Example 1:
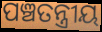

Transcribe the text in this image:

ପଞ୍ଚତନ୍ତ୍ରୀୟ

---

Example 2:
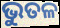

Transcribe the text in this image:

ଭୁତଳ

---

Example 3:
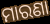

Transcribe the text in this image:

ମାରଣା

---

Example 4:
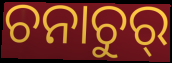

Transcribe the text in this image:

ଚନାଚୁର୍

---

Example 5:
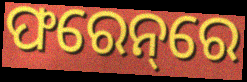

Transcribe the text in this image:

ଫରେନ୍‌ରେ